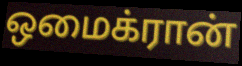
ஒமைக்ரான்